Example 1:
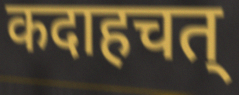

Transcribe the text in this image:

कदाहचत्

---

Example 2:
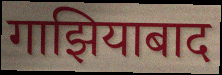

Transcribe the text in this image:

गाझियाबाद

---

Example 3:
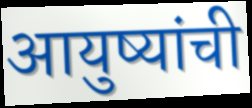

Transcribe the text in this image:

आयुष्यांची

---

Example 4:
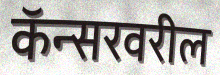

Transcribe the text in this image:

कॅन्सरवरील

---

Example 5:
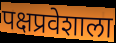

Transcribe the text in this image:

पक्षप्रवेशाला